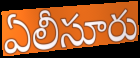
ఏలీసూరు